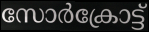
സോർക്രോട്ട്